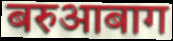
बरुआबाग